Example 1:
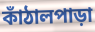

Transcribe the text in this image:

কাঁঠালপাড়া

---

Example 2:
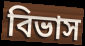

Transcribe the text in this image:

বিভাস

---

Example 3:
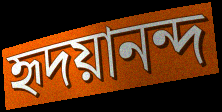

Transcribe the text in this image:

হৃদয়ানন্দ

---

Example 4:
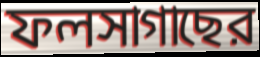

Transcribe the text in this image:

ফলসাগাছের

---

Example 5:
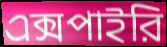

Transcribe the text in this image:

এক্সপাইরি